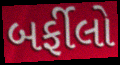
બર્ફીલો